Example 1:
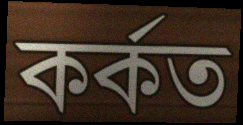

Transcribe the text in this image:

কৰ্কত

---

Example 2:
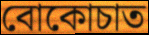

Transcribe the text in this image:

বোকোচাত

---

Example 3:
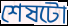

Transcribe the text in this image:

শেষটো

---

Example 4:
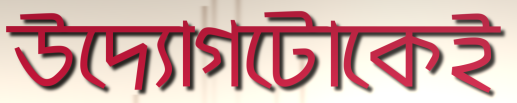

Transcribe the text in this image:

উদ্যোগটোকেই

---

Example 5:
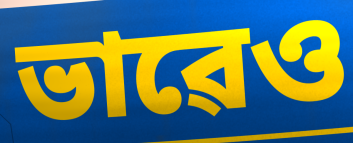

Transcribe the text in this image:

ভাৱেও